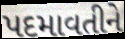
પદમાવતીને